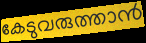
കേടുവരുത്താൻ